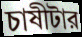
চাষীটার